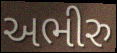
અભીરુ